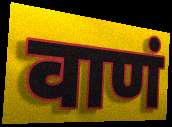
वाणं